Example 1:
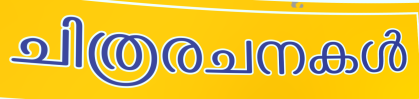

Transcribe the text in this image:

ചിത്രരചനകൾ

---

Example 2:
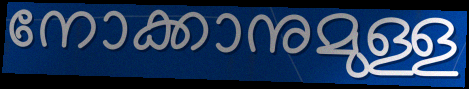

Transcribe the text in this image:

നോക്കാനുമുള്ള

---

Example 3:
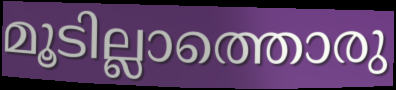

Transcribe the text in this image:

മൂടില്ലാത്തൊരു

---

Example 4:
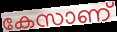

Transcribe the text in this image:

കേസാണ്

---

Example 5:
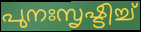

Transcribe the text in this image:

പുനഃസൃഷ്ടിച്ച്